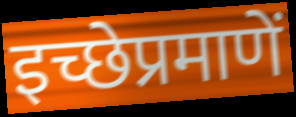
इच्छेप्रमाणें